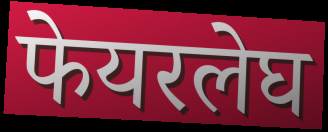
फेयरलेघ